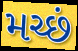
મચ્છં